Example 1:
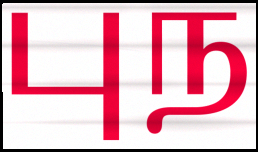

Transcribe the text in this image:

புந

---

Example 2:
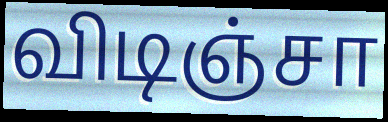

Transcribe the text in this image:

விடிஞ்சா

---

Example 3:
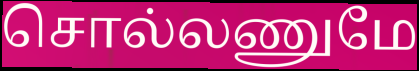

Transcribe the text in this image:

சொல்லணுமே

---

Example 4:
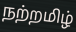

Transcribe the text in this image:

நற்றமிழ்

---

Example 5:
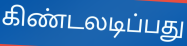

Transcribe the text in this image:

கிண்டலடிப்பது